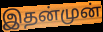
இதன்முன்